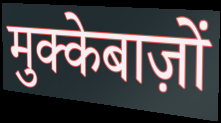
मुक्केबाज़ों